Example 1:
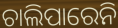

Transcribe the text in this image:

ଚାଲିପାରେନି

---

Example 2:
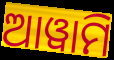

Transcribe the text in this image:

ଆୱାମି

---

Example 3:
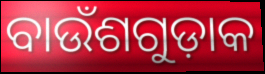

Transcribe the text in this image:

ବାଉଁଶଗୁଡ଼ାକ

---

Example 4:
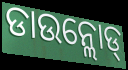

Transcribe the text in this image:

ଡାଉନ୍ଲୋଡ୍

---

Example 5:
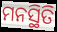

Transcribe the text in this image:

ମନସ୍ଥିତି